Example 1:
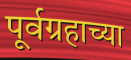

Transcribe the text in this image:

पूर्वग्रहाच्या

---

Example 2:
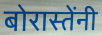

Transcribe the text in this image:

बोरास्तेंनी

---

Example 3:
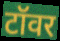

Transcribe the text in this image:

टॉवर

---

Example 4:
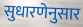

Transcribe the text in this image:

सुधारणेनुसार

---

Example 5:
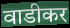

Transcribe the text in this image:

वाडीकर